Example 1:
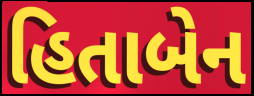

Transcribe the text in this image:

હિતાબેન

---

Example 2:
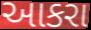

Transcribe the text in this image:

આકરા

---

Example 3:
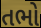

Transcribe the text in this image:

તભો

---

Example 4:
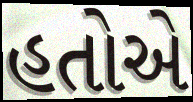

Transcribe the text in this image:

હતોએ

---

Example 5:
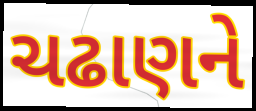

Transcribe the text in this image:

ચઢાણને